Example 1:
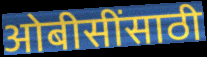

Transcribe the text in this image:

ओबीसींसाठी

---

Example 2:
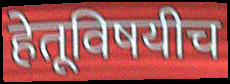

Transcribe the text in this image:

हेतूविषयीच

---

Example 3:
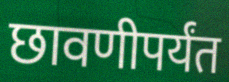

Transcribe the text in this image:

छावणीपर्यंत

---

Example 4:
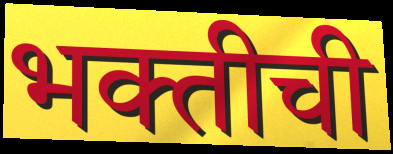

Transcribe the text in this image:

भक्तीची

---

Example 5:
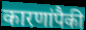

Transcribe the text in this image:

कारणांपैकी